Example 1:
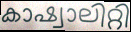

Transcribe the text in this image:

കാഷ്വാലിറ്റി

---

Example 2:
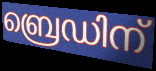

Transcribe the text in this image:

ബ്രെഡിന്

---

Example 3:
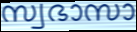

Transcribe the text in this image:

സ്വഭാസാ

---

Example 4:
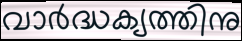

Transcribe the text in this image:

വാർദ്ധക്യത്തിനു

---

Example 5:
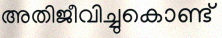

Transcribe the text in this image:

അതിജീവിച്ചുകൊണ്ട്